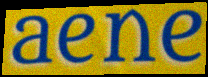
aene